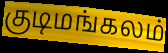
குடிமங்கலம்